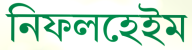
নিফলহেইম